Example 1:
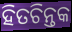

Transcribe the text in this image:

ହିତଚିନ୍ତକ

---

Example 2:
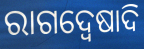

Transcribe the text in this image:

ରାଗଦ୍ୱେଷାଦି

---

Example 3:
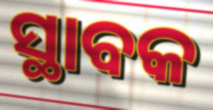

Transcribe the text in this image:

ସ୍ଥାବକ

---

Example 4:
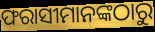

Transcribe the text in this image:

ଫରାସୀମାନଙ୍କଠାରୁ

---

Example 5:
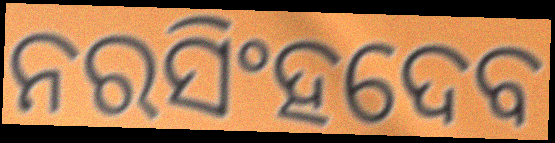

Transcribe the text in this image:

ନରସିଂହଦେବ